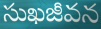
సుఖజీవన